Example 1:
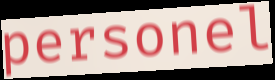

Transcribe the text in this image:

personel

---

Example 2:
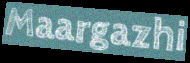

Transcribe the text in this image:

Maargazhi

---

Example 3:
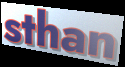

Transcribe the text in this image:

sthan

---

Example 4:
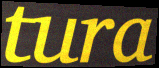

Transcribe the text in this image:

tura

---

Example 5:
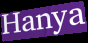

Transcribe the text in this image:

Hanya